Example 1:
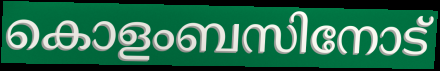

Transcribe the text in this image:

കൊളംബസിനോട്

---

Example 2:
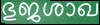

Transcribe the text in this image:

ഭുജശാഖ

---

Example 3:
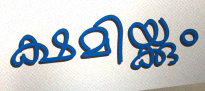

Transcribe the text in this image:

ക്ഷമിയ്ക്കും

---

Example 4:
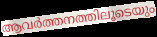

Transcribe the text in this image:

ആവർത്തനത്തിലൂടെയും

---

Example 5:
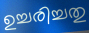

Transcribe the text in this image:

ഉച്ചരിച്ചതു